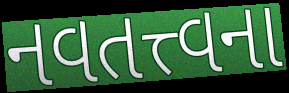
નવતત્ત્વના